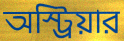
অস্ট্রিয়ার